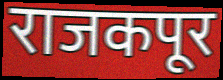
राजकपूर